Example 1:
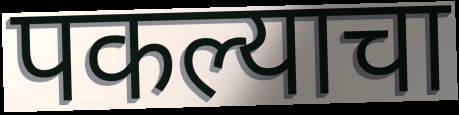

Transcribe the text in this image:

पकल्याचा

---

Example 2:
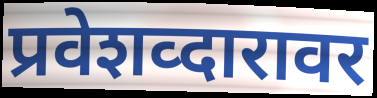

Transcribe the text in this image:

प्रवेशव्दारावर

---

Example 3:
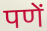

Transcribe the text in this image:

पणें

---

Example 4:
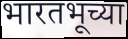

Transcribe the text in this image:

भारतभूच्या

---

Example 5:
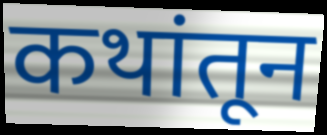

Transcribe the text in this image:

कथांतून